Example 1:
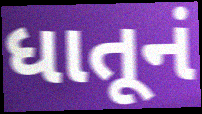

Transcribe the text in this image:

ધાતૂનં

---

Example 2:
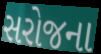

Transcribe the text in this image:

સરોજના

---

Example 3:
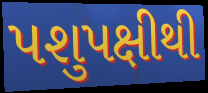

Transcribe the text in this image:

પશુપક્ષીથી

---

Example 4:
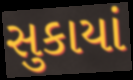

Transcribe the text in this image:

સુકાયાં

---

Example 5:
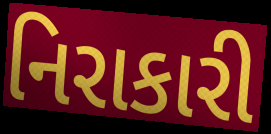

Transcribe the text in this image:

નિરાકારી